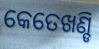
କେତେଖଣ୍ଡି